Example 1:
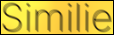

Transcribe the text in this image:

Similie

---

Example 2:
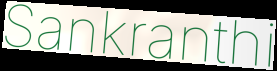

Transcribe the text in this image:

Sankranthi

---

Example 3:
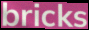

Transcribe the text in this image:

bricks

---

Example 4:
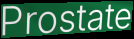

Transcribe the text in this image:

Prostate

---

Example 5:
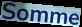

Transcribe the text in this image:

Somme